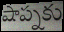
షాప్నకు